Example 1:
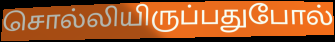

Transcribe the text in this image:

சொல்லியிருப்பதுபோல்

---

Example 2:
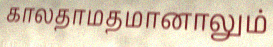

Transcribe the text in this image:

காலதாமதமானாலும்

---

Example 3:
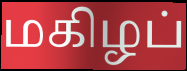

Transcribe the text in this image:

மகிழப்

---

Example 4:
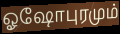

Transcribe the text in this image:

ஓஷோபுரமும்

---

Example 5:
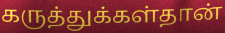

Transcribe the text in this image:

கருத்துக்கள்தான்